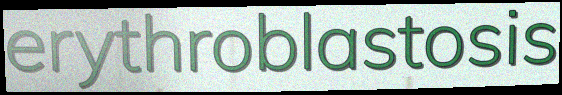
erythroblastosis